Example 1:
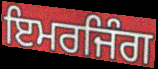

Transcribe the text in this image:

ਇਮਰਜਿੰਗ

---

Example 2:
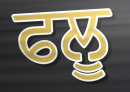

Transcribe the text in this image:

ਫਲੂ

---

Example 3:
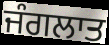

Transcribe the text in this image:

ਜੰਗਲਾਤ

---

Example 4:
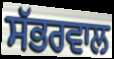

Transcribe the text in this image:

ਸੱਭਰਵਾਲ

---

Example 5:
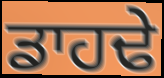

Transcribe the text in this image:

ਡਾਹਢੇ